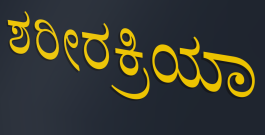
ಶರೀರಕ್ರಿಯಾ